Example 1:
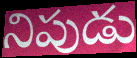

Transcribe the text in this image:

నిపుడు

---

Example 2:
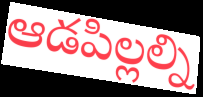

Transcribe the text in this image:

ఆడపిల్లల్ని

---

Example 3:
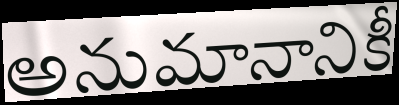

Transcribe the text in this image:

అనుమానానికీ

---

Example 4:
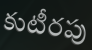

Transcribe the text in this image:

కుటీరపు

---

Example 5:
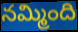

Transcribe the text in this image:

నమ్మింది